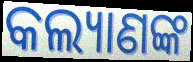
କଲ୍ୟାଣଙ୍କ